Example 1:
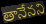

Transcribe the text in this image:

తానేనని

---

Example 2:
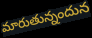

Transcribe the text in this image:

మారుతున్నందున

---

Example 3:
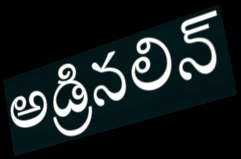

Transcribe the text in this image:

అడ్రినలిన్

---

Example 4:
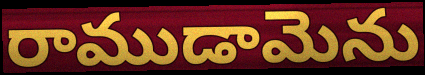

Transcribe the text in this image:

రాముడామెను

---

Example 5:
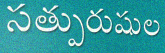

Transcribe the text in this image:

సత్పురుషుల